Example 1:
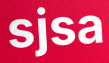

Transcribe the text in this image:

sjsa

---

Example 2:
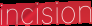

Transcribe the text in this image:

incision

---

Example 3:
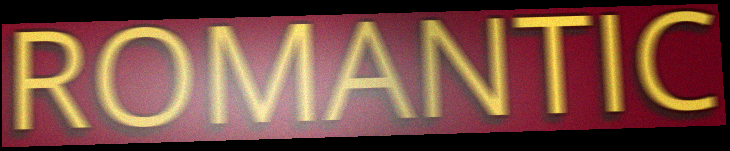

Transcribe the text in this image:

ROMANTIC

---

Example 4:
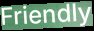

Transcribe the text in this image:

Friendly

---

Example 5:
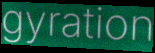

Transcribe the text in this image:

gyration